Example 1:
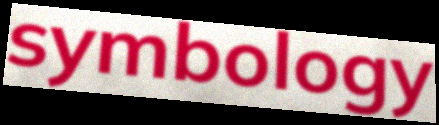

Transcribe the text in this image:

symbology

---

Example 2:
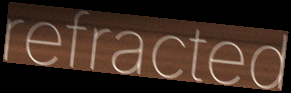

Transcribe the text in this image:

refracted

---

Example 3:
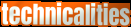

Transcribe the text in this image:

technicalities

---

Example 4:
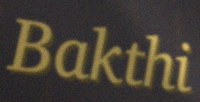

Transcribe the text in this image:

Bakthi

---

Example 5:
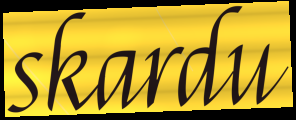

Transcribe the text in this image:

skardu